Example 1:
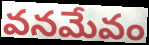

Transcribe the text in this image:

వనమేవం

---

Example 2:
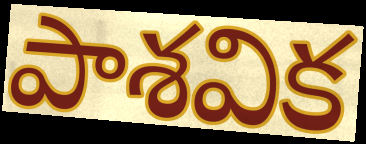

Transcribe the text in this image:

పాశవిక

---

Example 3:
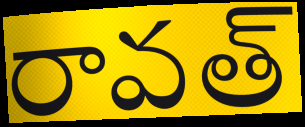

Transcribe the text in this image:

రావత్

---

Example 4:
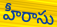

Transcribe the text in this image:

హీరాసు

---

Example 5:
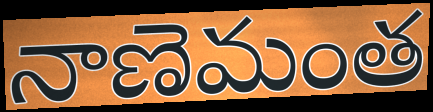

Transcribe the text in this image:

నాణెమంత